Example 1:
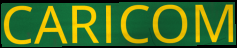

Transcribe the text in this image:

CARICOM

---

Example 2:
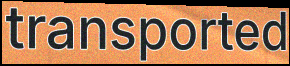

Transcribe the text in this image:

transported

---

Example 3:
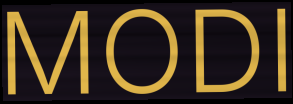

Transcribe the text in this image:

MODI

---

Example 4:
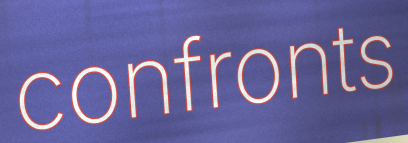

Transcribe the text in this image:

confronts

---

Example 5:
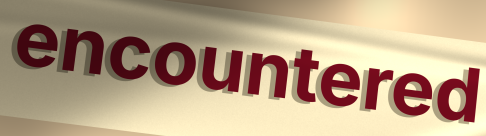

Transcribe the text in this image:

encountered